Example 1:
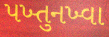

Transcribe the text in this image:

પખ્તુનખ્વા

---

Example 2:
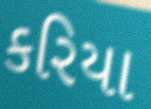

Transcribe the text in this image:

કરિયા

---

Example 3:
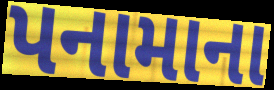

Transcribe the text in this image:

પનામાના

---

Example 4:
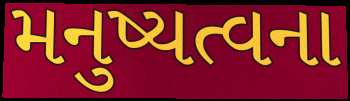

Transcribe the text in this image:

મનુષ્યત્વના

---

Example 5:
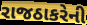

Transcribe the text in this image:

રાજઠાકરેની